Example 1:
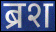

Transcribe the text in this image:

ब्रश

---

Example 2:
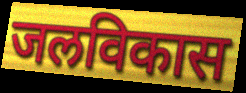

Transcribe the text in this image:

जलविकास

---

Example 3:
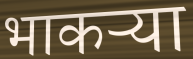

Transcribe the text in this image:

भाकऱ्या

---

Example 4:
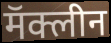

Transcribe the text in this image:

मॅक्लीन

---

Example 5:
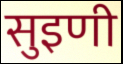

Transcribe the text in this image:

सुइणी